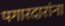
पगारदारांना